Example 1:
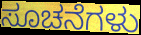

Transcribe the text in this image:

ಸೂಚನೆಗಳು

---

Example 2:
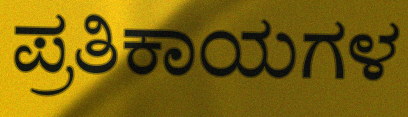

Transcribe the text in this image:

ಪ್ರತಿಕಾಯಗಳ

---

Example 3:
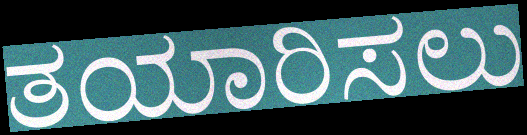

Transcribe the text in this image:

ತಯಾರಿಸಲು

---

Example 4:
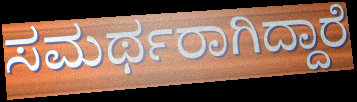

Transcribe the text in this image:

ಸಮರ್ಥರಾಗಿದ್ದಾರೆ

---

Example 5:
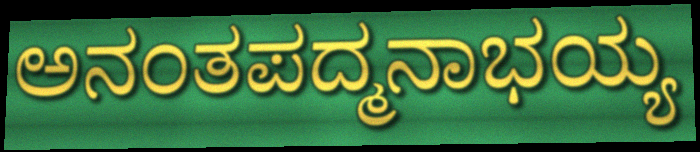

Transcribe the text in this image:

ಅನಂತಪದ್ಮನಾಭಯ್ಯ